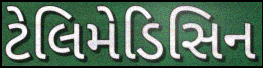
ટેલિમેડિસિન